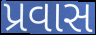
પ્રવાસ